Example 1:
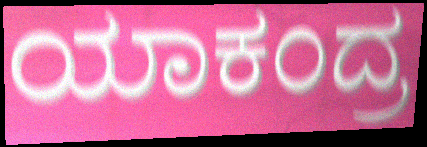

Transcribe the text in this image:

ಯಾಕಂದ್ರ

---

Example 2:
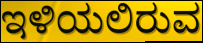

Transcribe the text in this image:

ಇಳಿಯಲಿರುವ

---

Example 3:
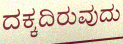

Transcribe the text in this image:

ದಕ್ಕದಿರುವುದು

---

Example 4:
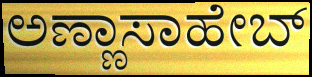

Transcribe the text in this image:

ಅಣ್ಣಾಸಾಹೇಬ್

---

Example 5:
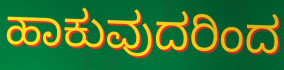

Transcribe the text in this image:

ಹಾಕುವುದರಿಂದ